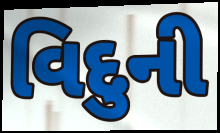
વિદુની